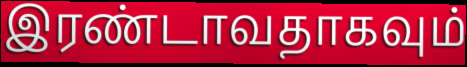
இரண்டாவதாகவும்